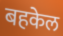
बहकेल